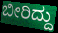
ಬೀರಿದ್ದು